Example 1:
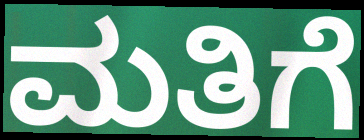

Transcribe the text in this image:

ಮತಿಗೆ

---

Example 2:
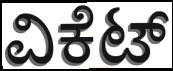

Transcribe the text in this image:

ವಿಕೆಟ್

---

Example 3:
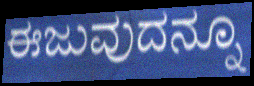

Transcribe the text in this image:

ಈಜುವುದನ್ನೂ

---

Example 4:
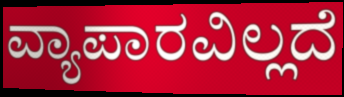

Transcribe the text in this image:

ವ್ಯಾಪಾರವಿಲ್ಲದೆ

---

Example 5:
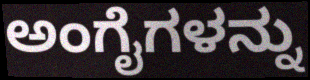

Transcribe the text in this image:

ಅಂಗೈಗಳನ್ನು